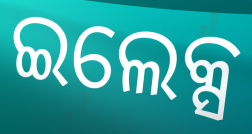
ଇଲେକ୍ସ